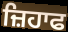
ਜ਼ਿਹਾਫ